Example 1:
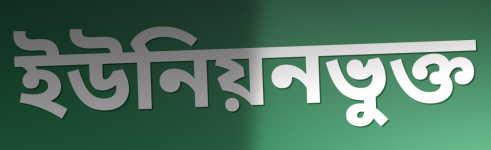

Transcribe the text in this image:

ইউনিয়নভুক্ত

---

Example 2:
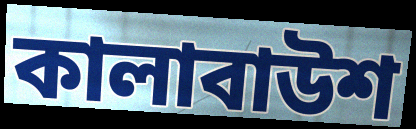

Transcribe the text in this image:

কালাবাউশ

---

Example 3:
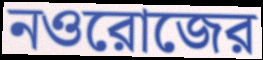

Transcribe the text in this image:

নওরোজের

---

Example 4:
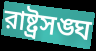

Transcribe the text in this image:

রাষ্ট্রসঙ্ঘ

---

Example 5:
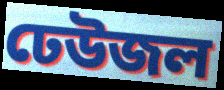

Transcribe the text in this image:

ঢেউজল